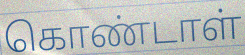
கொண்டாள்